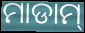
ମାଡାମ୍